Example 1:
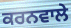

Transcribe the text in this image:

ਕਰਨਵਾਲੇ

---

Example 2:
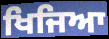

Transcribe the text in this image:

ਖਿਜਿਆ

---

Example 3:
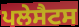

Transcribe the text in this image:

ਪਲੇਸੈਟਸ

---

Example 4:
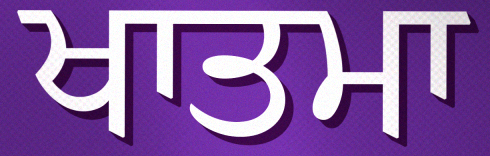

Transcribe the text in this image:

ਖਾਤਮਾ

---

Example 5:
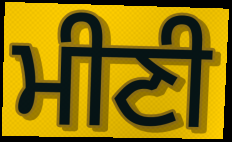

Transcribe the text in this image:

ਮੀਣੀ